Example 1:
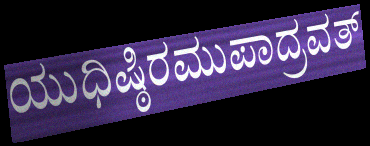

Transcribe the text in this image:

ಯುಧಿಷ್ಠಿರಮುಪಾದ್ರವತ್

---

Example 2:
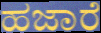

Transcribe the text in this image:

ಹಜಾರೆ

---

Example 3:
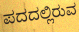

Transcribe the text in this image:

ಪದದಲ್ಲಿರುವ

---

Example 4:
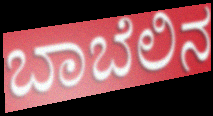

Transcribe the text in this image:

ಬಾಬೆಲಿನ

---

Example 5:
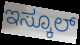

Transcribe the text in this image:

ಇಸ್ಕೂಲ್